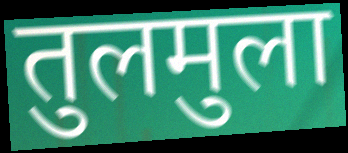
तुलमुला